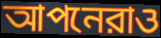
আপনেরাও